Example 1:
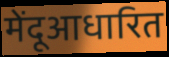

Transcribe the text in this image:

मेंदूआधारित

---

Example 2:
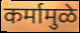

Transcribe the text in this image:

कर्मामुळे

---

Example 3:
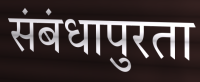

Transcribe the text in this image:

संबंधापुरता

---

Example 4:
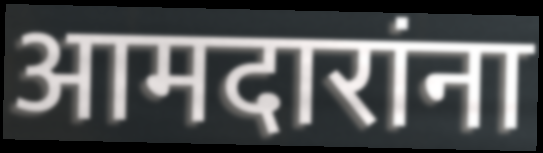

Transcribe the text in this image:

आमदारांना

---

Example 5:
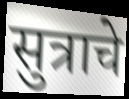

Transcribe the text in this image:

सुत्राचे